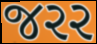
જરર